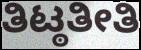
ತಿಟ್ಠತೀತಿ